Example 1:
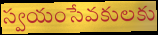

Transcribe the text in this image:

స్వయంసేవకులకు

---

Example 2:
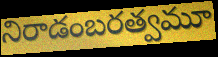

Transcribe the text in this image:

నిరాడంబరత్వమూ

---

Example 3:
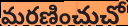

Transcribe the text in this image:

మరణించుచో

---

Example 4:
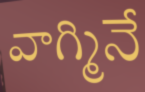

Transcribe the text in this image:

వాగ్మినే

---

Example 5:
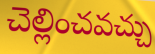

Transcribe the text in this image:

చెల్లించవచ్చు